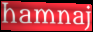
hamnaj